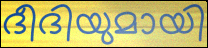
ദീദിയുമായി